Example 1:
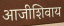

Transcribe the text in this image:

आजीशिवाय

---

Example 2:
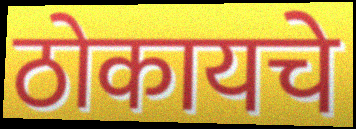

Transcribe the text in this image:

ठोकायचे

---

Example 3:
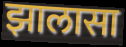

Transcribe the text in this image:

झालासा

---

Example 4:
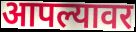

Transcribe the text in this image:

आपल्यावर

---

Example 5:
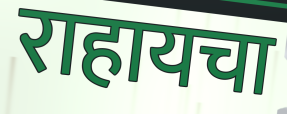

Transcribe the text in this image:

राहायचा